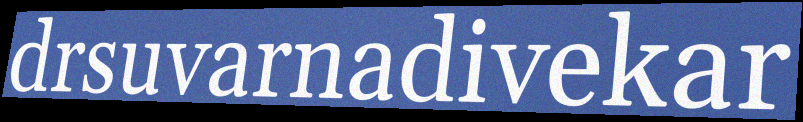
drsuvarnadivekar